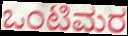
ಒಂಟಿಮರ